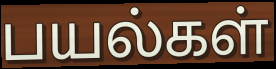
பயல்கள்